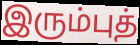
இரும்புத்